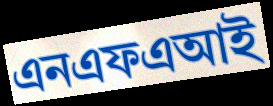
এনএফএআই